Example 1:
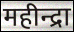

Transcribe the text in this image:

महीन्द्रा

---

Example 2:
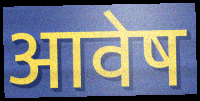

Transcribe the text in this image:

आवेष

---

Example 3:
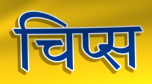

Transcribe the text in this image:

चिप्स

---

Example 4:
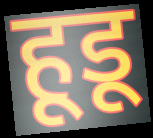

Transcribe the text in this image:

हूडू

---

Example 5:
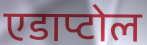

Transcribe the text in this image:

एडाप्टोल